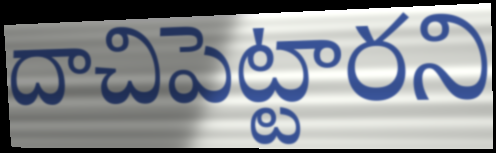
దాచిపెట్టారని